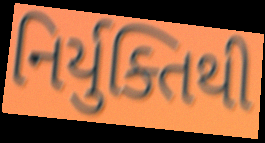
નિર્યુક્તિથી